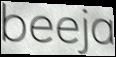
beeja